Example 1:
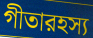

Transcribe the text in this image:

গীতারহস্য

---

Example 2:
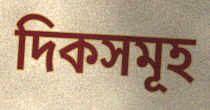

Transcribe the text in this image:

দিকসমূহ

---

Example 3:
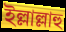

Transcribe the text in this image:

ইল্লাল্লাহু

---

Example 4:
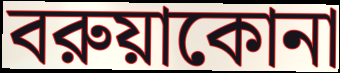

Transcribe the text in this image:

বরুয়াকোনা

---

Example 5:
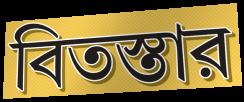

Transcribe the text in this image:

বিতস্তার